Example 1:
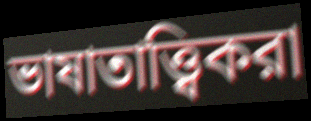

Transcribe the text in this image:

ভাষাতাত্ত্বিকরা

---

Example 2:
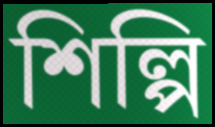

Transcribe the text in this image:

শিল্পি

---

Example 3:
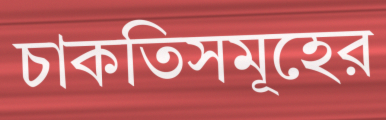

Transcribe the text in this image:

চাকতিসমূহের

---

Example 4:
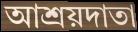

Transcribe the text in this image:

আশ্রয়দাতা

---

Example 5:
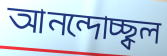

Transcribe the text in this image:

আনন্দোচ্ছ্বল